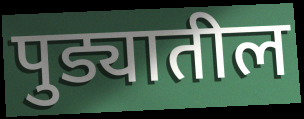
पुड्यातील